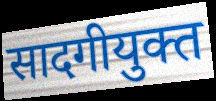
सादगीयुक्त